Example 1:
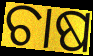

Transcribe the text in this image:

ଚାଷ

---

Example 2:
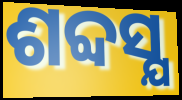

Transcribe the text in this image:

ଶବ୍ଦସ୍ଯ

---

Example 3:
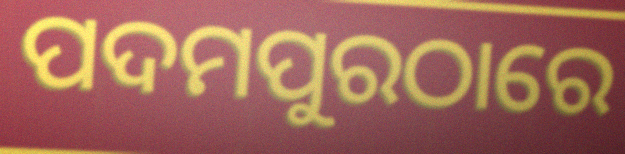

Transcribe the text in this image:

ପଦମପୁରଠାରେ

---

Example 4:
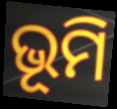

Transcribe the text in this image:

ଭୂମି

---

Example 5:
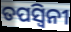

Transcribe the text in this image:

ତପସ୍ଵିନୀ